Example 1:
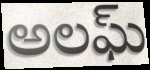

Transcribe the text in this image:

అలఘ్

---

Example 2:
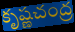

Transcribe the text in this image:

కృష్ణచంద్ర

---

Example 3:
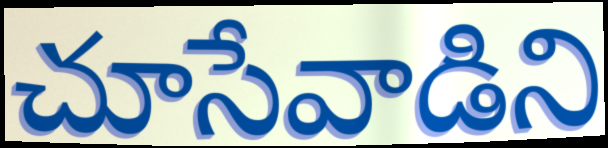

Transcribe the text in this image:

చూసేవాడిని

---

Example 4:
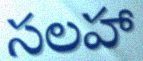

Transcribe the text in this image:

సలహా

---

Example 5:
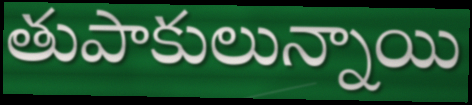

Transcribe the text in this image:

తుపాకులున్నాయి